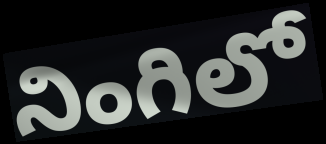
నింగిలో